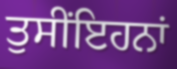
ਤੁਸੀਂਇਹਨਾਂ